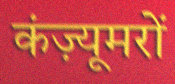
कंज़्यूमरों